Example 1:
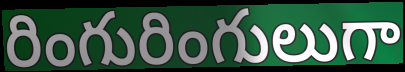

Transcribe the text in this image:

రింగురింగులుగా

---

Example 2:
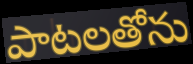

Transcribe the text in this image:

పాటలతోను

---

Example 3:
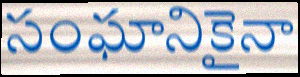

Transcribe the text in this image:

సంఘానికైనా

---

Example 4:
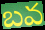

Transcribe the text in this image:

బవ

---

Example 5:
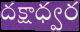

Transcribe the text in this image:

దక్షాధ్వర